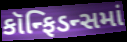
કૉન્ફિડન્સમાં